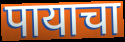
पायाचा